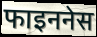
फाइननेस